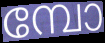
മ്പോ